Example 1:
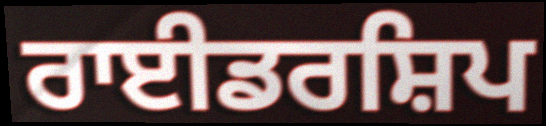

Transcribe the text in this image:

ਰਾਈਡਰਸ਼ਿਪ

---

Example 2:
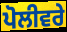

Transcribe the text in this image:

ਪੋਲੀਵਰੇ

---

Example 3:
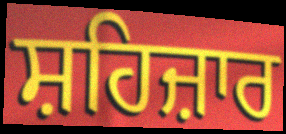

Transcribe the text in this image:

ਸ਼ਹਿਜ਼ਾਰ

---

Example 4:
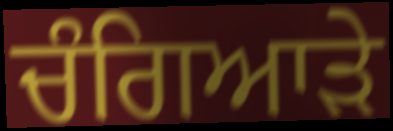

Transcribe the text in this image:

ਚੰਗਿਆੜੇ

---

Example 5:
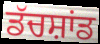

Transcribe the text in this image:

ਡੱਚਸ਼ਾਂਡ